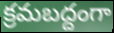
క్రమబద్దంగా